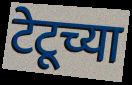
टेटूच्या